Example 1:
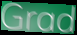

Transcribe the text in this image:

Grad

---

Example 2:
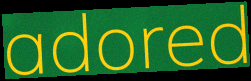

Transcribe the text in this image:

adored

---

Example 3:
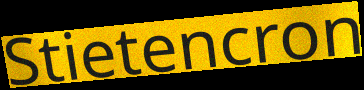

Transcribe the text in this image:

Stietencron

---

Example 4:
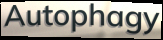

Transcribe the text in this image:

Autophagy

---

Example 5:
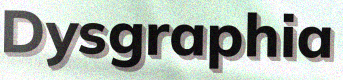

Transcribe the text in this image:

Dysgraphia